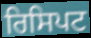
ਰਿਸਿਪਟ